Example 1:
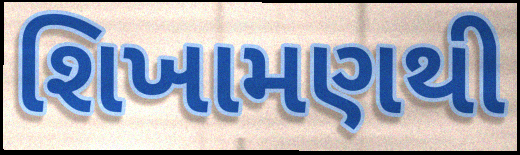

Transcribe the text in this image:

શિખામણથી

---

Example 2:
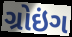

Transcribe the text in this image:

ગ્રોઇંગ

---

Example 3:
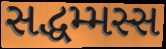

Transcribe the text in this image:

સદ્ધમ્મસ્સ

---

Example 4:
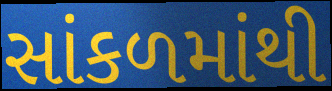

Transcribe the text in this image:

સાંકળમાંથી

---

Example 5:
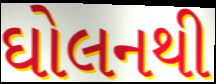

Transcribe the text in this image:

ઘોલનથી